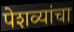
पेशव्यांचा